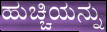
ಹುಚ್ಚಿಯನ್ನು